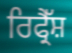
ਰਿਫ੍ਰੈੱਸ਼